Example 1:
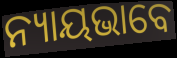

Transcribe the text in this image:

ନ୍ୟାୟଭାବେ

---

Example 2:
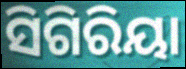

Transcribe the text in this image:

ସିଗିରିୟା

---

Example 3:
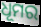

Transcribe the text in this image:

ଧୂମର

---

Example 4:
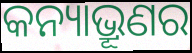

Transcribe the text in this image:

କନ୍ୟାଭ୍ରୂଣର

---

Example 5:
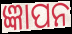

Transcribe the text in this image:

ଜ୍ଞାପନ